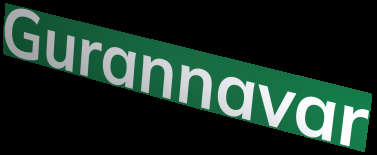
Gurannavar